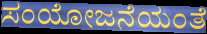
ಸಂಯೋಜನೆಯಂತೆ